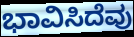
ಭಾವಿಸಿದೆವು